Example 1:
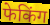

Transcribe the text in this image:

फेकिंग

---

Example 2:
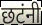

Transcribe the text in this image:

छटंनी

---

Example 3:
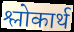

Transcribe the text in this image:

श्लोकार्थ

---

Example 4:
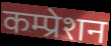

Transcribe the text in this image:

कम्प्रेशन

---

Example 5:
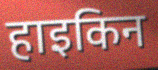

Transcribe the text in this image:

हाइकिन